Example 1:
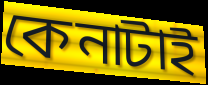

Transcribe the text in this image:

কেনাটাই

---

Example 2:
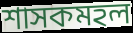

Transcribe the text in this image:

শাসকমহল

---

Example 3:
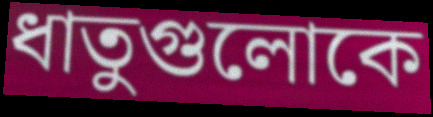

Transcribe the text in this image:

ধাতুগুলোকে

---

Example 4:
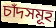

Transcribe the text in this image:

চাঁদসমূহ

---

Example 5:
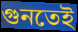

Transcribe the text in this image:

গুনতেই